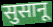
सुसानू